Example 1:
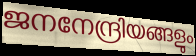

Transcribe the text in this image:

ജനനേന്ദ്രിയങ്ങളും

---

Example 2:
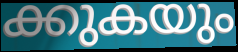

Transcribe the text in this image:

ക്കുകയും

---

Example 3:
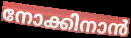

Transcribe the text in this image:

നോക്കിനാൻ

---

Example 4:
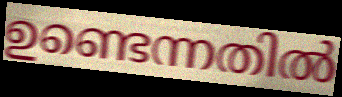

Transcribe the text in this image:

ഉണ്ടെന്നതിൽ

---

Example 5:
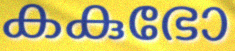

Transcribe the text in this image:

കകുഭോ